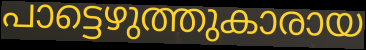
പാട്ടെഴുത്തുകാരായ